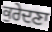
ਕੁਰੇਦਣਾ